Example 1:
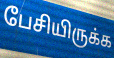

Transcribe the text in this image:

பேசியிருக்க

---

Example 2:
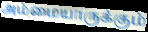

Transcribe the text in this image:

அம்மையாருக்கும்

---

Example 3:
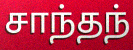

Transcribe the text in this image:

சாந்தந்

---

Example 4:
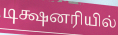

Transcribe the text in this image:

டிக்ஷனரியில்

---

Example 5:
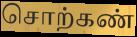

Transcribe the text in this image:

சொற்கண்